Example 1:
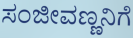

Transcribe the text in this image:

ಸಂಜೀವಣ್ಣನಿಗೆ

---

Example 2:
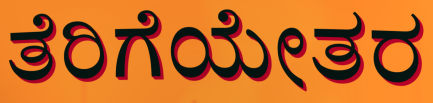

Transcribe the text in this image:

ತೆರಿಗೆಯೇತರ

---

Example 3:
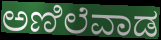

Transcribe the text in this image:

ಅಣಿಲೆವಾಡ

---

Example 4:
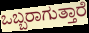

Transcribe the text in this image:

ಒಬ್ಬರಾಗುತ್ತಾರೆ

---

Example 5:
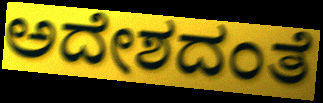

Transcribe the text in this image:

ಅದೇಶದಂತೆ